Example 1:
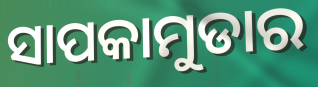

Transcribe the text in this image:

ସାପକାମୁଡାର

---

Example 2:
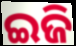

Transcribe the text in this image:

ଇଜି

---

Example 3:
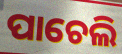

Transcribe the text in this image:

ପାଚେଲି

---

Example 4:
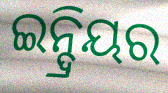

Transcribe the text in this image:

ଇନ୍ଦ୍ରିୟର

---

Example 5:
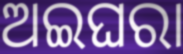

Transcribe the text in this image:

ଅଇଘରା